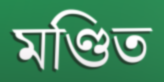
মণ্ডিত